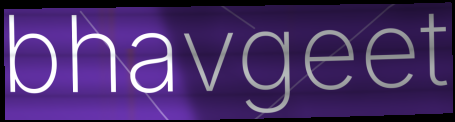
bhavgeet